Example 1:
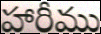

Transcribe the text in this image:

హారీము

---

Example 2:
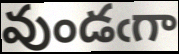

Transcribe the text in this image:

వుండఁగా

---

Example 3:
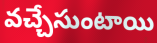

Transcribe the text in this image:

వచ్చేసుంటాయి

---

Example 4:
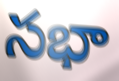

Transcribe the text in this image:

సభా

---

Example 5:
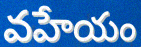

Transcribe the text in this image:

వహేయం